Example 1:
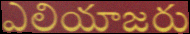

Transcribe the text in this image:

ఎలియాజరు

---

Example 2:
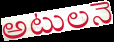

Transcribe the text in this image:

అటులనె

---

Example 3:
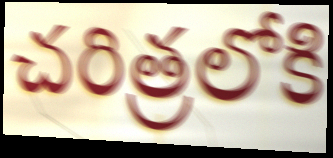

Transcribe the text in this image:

చరిత్రలోకి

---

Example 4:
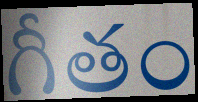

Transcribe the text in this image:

గీతం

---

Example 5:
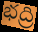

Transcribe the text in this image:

భద్రి